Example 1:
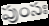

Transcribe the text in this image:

పుంసః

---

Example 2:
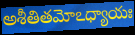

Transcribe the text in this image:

అశీతితమోఽధ్యాయః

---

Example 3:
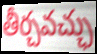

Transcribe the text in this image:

తీర్చవచ్ఛు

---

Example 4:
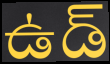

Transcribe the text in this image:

ఉడ్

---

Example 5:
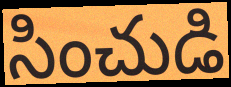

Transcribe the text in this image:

సించుడి